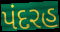
પંદરહ